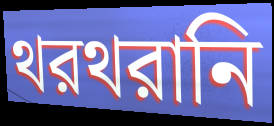
থরথরানি